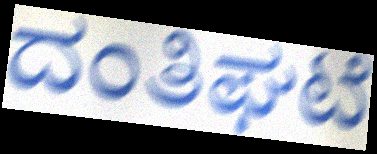
ದಂತಿಘಟೆ